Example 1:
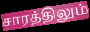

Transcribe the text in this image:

சாரத்திலும்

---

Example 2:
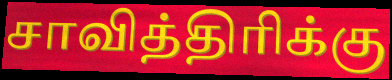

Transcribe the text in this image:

சாவித்திரிக்கு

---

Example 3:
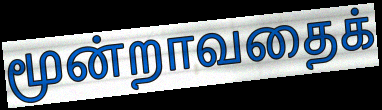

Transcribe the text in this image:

மூன்றாவதைக்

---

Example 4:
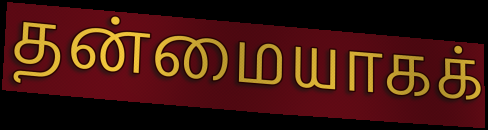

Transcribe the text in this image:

தன்மையாகக்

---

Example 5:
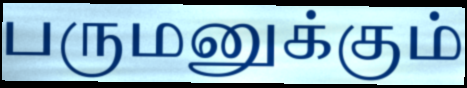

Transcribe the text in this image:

பருமனுக்கும்